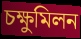
চক্ষুমিলন